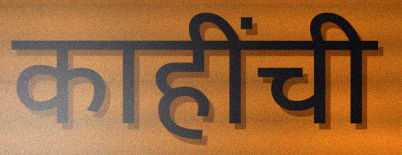
काहींची